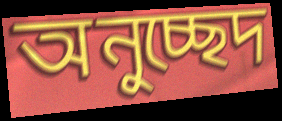
অনুচ্ছেদ